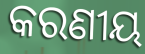
କରଣୀୟ